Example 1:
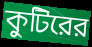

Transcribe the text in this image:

কুটিরের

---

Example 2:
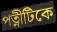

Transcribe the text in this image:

পত্নীটিকে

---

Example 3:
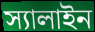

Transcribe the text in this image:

স্যালাইন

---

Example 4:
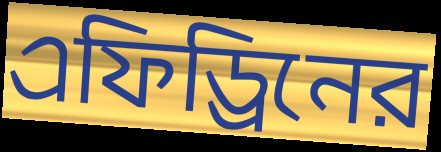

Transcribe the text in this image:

এফিড্রিনের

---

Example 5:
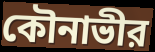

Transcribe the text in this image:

কৌনাভীর